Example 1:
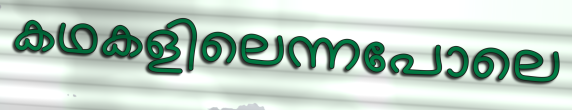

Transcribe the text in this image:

കഥകളിലെന്നപോലെ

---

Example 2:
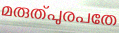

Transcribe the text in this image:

മരുത്പുരപതേ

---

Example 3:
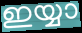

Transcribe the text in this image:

ഇയ്യാ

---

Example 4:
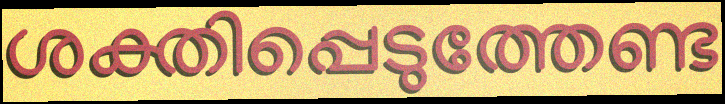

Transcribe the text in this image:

ശക്തിപ്പെടുത്തേണ്ട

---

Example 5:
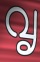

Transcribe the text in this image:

വൃ